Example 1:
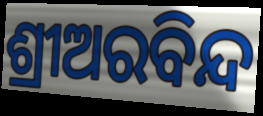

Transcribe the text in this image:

ଶ୍ରୀଅରବିନ୍ଦ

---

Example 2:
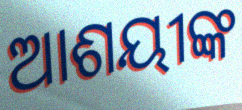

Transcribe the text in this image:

ଆଶୟୀଙ୍କ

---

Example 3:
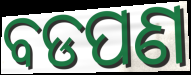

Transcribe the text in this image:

ବଡପଣ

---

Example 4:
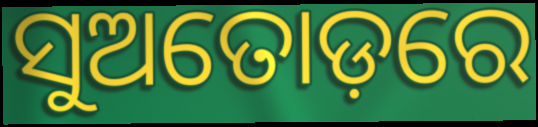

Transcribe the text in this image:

ସୁଅତୋଡ଼ରେ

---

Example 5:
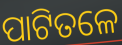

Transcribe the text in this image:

ପାଟିତଳେ